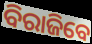
ବିରାଜିବେ